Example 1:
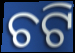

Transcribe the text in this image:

ଚଟି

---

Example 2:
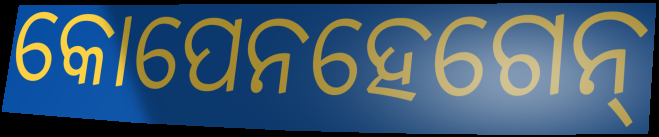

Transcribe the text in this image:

କୋପେନହେଗେନ୍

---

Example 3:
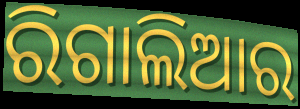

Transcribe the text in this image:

ରିଗାଲିଆର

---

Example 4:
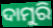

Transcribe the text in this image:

ଦାମୁରି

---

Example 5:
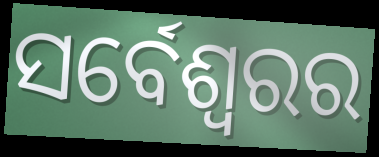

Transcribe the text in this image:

ସର୍ବେଶ୍ୱରର